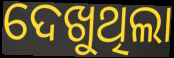
ଦେଖୁଥିଲା